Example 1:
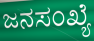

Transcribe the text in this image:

ಜನಸಂಖ್ಯೆ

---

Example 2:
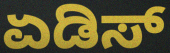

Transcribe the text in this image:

ಏಡಿಸ್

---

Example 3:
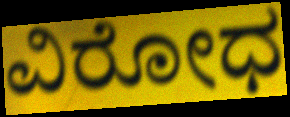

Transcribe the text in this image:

ವಿರೋಧ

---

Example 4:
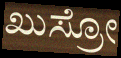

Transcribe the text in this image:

ಖುಸ್ರೋ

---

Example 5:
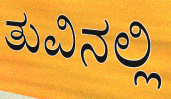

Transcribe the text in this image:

ತುವಿನಲ್ಲಿ